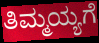
ತಿಮ್ಮಯ್ಯಗೆ